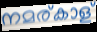
നമര്കാള്